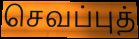
செவப்புத்